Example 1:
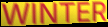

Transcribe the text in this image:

WINTER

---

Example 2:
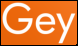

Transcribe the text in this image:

Gey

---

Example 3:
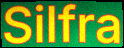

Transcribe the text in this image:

Silfra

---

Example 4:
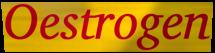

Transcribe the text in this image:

Oestrogen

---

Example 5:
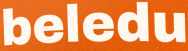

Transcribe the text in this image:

beledu